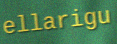
ellarigu